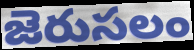
జెరుసలం